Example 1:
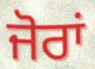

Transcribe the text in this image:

ਜੋਰਾਂ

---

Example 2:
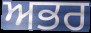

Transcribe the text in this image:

ਅਭਰ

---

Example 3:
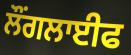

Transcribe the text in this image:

ਲੌਂਗਲਾਈਫ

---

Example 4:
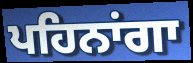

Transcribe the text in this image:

ਪਹਿਨਾਂਗਾ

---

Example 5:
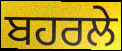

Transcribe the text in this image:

ਬਹਰਲੇ